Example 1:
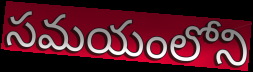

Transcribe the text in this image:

సమయంలోని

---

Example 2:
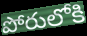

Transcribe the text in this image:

పోరులోకి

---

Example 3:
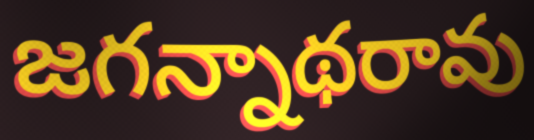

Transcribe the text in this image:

జగన్నాథరావు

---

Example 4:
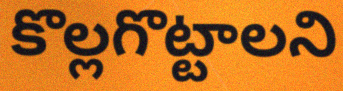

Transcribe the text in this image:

కొల్లగొట్టాలని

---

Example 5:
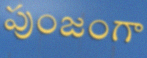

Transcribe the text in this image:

పుంజంగా